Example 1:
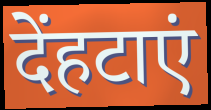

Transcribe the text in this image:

देंहटाएं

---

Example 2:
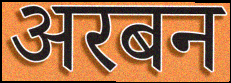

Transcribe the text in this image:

अरबन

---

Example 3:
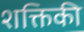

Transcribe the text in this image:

शक्तिकी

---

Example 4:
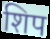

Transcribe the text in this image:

शिप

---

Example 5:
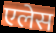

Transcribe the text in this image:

एलेस